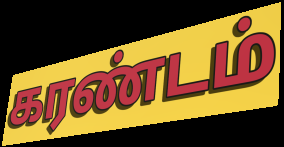
கரண்டம்